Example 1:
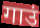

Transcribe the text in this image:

गाउं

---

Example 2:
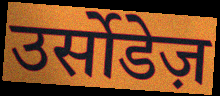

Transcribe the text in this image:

उर्सोडेज़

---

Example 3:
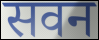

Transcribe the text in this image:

सवन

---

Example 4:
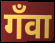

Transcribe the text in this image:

गँवा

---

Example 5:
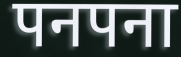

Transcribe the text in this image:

पनपना